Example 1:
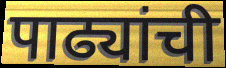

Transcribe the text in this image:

पाढ्यांची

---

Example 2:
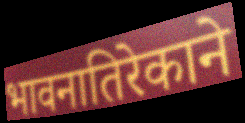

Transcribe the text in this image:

भावनातिरेकाने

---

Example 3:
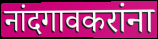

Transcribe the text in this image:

नांदगावकरांना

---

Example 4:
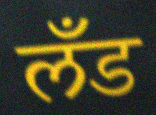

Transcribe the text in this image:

लँड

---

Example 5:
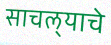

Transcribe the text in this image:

साचल्याचे